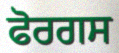
ਫੋਰਗਸ